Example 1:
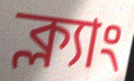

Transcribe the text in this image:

ক্ল্যাং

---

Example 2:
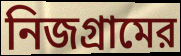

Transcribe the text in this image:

নিজগ্রামের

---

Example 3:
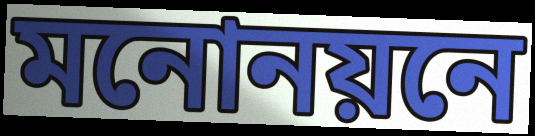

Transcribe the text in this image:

মনোনয়নে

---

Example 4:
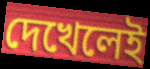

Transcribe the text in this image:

দেখেলেই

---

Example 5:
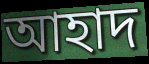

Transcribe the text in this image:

আহাদ